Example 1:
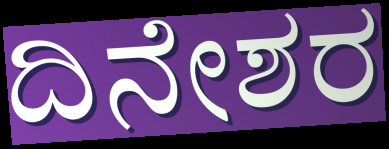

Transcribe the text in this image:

ದಿನೇಶರ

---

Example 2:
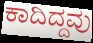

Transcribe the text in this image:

ಕಾದಿದ್ದವು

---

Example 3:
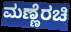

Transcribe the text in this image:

ಮಣ್ಣೆರಚಿ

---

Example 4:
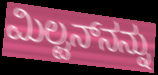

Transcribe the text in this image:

ಮಿಲ್ಟನ್‌ನನ್ನು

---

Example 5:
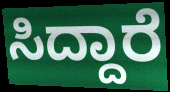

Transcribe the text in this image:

ಸಿದ್ದಾರೆ